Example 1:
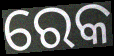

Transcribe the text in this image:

ରେକ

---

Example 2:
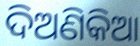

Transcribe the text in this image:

ଦିଅଣିକିଆ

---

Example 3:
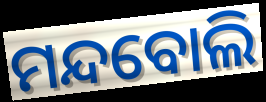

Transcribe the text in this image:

ମନ୍ଦବୋଲି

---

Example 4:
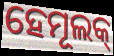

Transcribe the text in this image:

ହେମୂଲକ୍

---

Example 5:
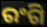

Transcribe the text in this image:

ରଂଗି